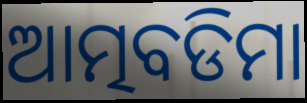
ଆତ୍ମବଡିମା